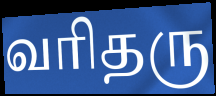
வரிதரு